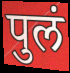
पुलं